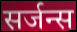
सर्जन्स